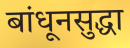
बांधूनसुद्धा